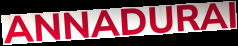
ANNADURAI